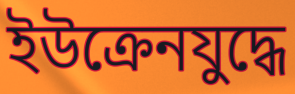
ইউক্রেনযুদ্ধে